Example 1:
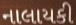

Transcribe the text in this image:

નાલાયકી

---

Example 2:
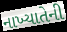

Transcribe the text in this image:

નાખ્યાતેની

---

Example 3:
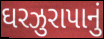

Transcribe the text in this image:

ઘરઝુરાપાનું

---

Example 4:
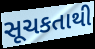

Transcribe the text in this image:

સૂચકતાથી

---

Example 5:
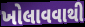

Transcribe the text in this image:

ખોલાવવાથી